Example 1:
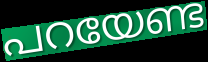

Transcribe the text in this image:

പറയേണ്ട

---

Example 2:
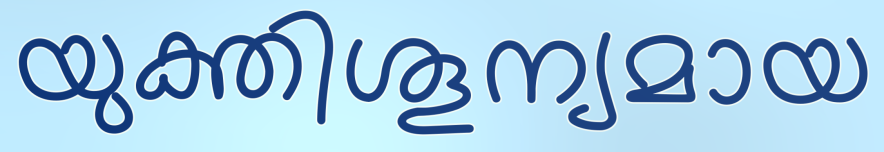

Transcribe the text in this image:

യുക്തിശൂന്യമായ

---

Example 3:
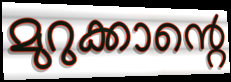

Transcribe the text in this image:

മുറുക്കാന്റെ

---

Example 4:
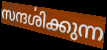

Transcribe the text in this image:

സന്ദൎശിക്കുന്ന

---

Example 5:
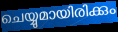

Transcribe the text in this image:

ചെയ്യുമായിരിക്കും